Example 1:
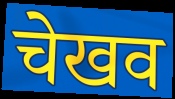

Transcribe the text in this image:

चेखव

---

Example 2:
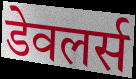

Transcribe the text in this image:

डेवलर्स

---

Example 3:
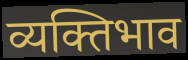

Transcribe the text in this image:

व्यक्तिभाव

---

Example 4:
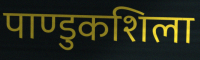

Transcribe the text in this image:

पाण्डुकशिला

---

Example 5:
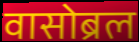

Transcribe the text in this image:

वासोब्रल